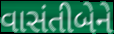
વાસંતીબેને